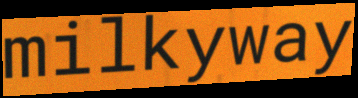
milkyway